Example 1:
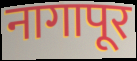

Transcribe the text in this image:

नागापूर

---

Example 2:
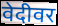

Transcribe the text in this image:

वेदीवर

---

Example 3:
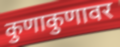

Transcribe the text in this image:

कुणाकुणावर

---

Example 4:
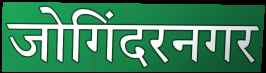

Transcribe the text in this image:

जोगिंदरनगर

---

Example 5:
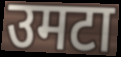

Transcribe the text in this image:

उमटा